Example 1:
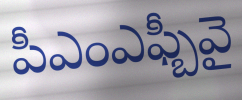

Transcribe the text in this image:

పీఎంఎఫ్బీవై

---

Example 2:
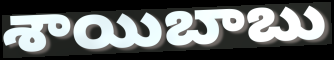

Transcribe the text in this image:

శాయిబాబు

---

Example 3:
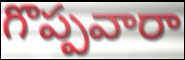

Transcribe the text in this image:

గొప్పవారా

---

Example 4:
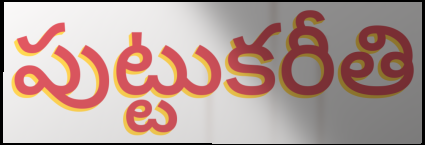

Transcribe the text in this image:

పుట్టుకరీతి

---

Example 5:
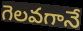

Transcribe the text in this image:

గెలవగానే